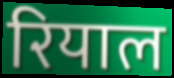
रियाल